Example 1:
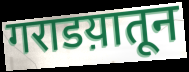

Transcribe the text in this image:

गराडय़ातून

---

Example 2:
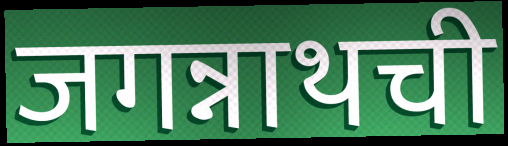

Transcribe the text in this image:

जगन्नाथची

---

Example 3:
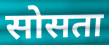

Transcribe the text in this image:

सोसता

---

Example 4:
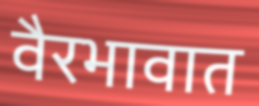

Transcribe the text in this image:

वैरभावात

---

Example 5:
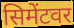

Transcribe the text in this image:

सिमेंटवर